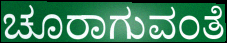
ಚೂರಾಗುವಂತೆ